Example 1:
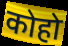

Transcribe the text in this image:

कोहो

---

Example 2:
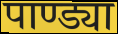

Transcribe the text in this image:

पाण्ड्या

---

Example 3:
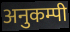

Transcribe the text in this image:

अनुकम्पी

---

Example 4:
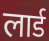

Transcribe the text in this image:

लार्ड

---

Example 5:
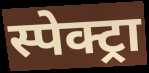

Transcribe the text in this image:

स्पेक्ट्रा